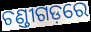
ଚଣ୍ଡୀଗଡ଼ରେ